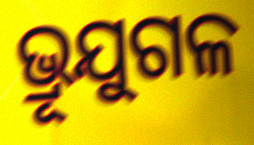
ଭ୍ରୂଯୁଗଳ